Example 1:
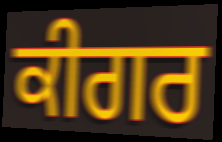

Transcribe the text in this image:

ਕੀਗਰ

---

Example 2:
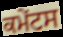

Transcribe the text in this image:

ਕਮੇੰਟਸ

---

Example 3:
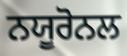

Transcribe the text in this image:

ਨਯੂਰੋਨਲ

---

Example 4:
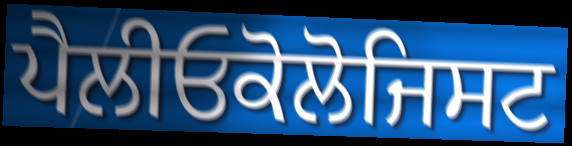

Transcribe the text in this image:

ਪੈਲੀਓਕੋਲੋਜਿਸਟ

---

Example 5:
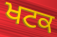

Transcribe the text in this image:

ਖਟਕ